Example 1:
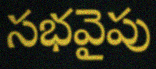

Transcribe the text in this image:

సభవైపు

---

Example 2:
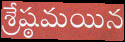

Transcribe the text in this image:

శ్రేష్ఠమయిన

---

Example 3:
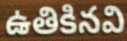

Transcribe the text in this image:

ఉతికినవి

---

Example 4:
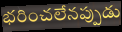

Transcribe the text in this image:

భరించలేనప్పుడు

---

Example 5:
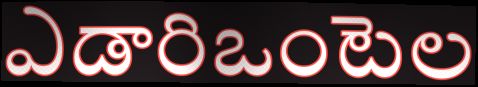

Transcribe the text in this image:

ఎడారిఒంటెల